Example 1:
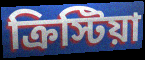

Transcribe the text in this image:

ক্রিস্টিয়া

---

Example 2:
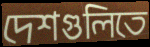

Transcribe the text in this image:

দেশগুলিতে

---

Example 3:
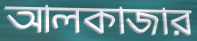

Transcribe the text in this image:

আলকাজার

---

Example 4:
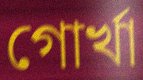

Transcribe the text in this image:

গোর্খা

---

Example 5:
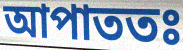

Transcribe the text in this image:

আপাততঃ